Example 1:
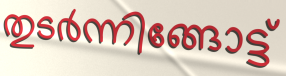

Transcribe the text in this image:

തുടർന്നിങ്ങോട്ട്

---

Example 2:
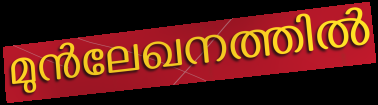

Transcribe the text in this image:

മുൻലേഖനത്തിൽ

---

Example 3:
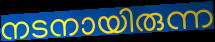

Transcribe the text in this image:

നടനായിരുന്ന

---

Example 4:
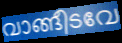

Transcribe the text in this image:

വാങ്ങീടവേ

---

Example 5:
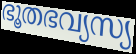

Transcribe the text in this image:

ഭൂതഭവ്യസ്യ